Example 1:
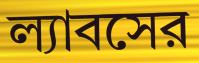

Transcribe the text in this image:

ল্যাবসের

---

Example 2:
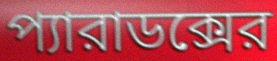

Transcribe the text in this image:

প্যারাডক্সের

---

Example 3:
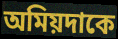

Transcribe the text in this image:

অমিয়দাকে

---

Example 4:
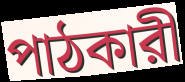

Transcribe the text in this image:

পাঠকারী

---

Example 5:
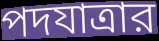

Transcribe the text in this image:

পদযাত্রার